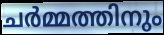
ചർമ്മത്തിനും